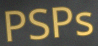
PSPs